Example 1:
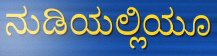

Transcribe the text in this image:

ನುಡಿಯಲ್ಲಿಯೂ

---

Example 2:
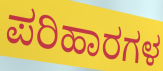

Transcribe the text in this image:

ಪರಿಹಾರಗಳ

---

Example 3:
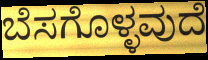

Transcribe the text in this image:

ಬೆಸಗೊಳ್ಳವುದೆ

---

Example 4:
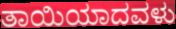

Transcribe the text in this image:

ತಾಯಿಯಾದವಳು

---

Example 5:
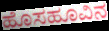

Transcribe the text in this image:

ಹೊಸಹೂವಿನ